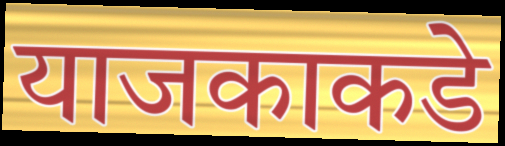
याजकाकडे